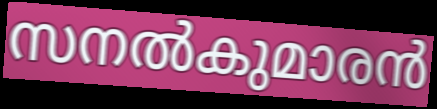
സനൽകുമാരൻ